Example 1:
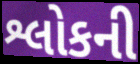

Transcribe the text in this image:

શ્લોકની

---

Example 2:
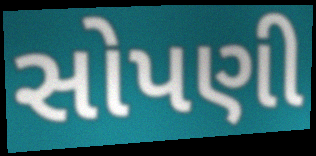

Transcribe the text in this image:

સોપણી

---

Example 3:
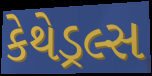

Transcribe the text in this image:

કેથેડ્રલ્સ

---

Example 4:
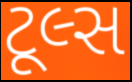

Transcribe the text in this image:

ટૂલ્સ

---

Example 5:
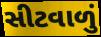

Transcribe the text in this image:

સીટવાળું